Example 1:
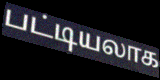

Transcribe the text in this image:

பட்டியலாக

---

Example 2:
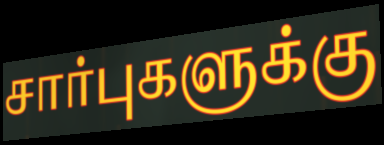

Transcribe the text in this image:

சார்புகளுக்கு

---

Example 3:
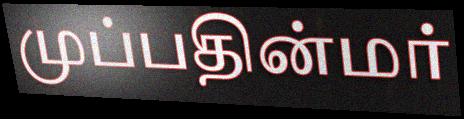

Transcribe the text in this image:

முப்பதின்மர்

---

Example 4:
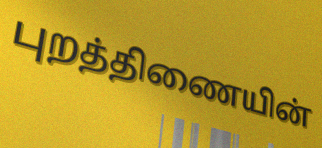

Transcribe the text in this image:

புறத்திணையின்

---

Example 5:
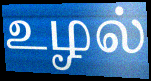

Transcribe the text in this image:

உழல்